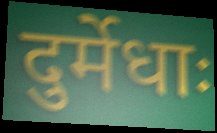
दुर्मेधाः